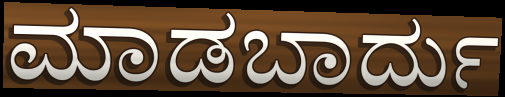
ಮಾಡಬಾರ್ದು